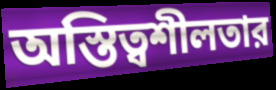
অস্তিত্বশীলতার